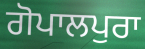
ਗੋਪਾਲਪੁਰਾ